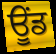
ਊਂਡ